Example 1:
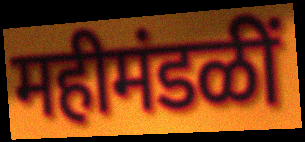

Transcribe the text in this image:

महीमंडळीं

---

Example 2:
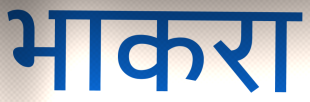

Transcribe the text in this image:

भाकरा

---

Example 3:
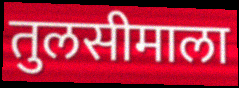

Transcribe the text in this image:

तुलसीमाला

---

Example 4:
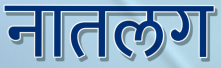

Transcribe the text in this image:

नातलग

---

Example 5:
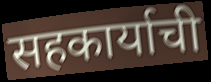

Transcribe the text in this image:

सहकार्याची